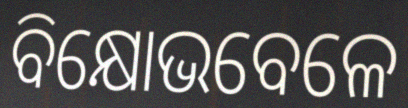
ବିକ୍ଷୋଭବେଳେ